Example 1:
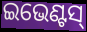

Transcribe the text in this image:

ଇଭେଣ୍ଟସ୍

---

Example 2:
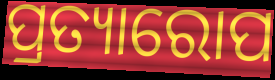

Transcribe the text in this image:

ପ୍ରତ୍ୟାରୋପ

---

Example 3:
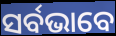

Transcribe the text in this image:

ସର୍ବଭାବେ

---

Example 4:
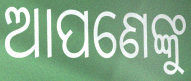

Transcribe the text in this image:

ଆପଣେଙ୍କୁ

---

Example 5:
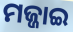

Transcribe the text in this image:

ମଜ୍ଜାଇ